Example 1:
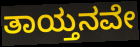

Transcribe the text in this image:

ತಾಯ್ತನವೇ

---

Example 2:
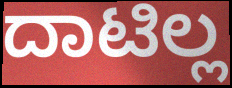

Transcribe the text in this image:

ದಾಟಿಲ್ಲ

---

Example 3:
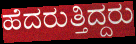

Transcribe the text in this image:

ಹೆದರುತ್ತಿದ್ದರು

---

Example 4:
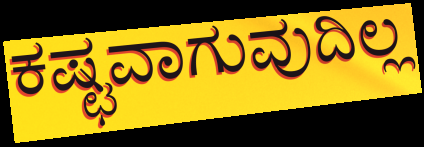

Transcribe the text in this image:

ಕಷ್ಟವಾಗುವುದಿಲ್ಲ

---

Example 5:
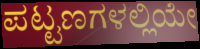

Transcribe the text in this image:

ಪಟ್ಟಣಗಳಲ್ಲಿಯೇ